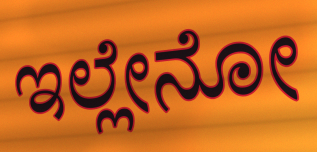
ಇಲ್ಲೇನೋ